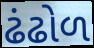
ઢંઢોળ